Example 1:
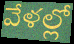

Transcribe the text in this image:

వేళల్లో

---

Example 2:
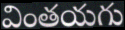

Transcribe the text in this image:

వింతయగు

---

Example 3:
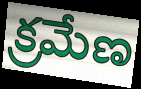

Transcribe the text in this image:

క్రమేణ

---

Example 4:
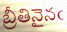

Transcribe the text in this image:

బ్రీతినైనఁ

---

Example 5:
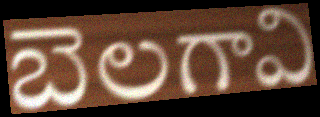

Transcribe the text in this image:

బెలగావి